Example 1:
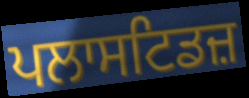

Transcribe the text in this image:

ਪਲਾਸਟਿਡਜ਼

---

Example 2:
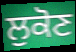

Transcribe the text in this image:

ਲੁਕੋਣ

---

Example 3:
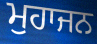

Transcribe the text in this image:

ਮੁਹਾਜਨ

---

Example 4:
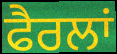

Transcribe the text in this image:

ਫੈਰਲਾਂ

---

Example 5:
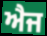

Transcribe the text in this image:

ਐਜ